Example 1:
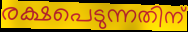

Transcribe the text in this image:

രക്ഷപെടുന്നതിന്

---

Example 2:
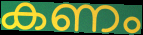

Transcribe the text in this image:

കണം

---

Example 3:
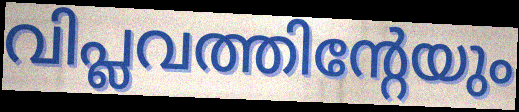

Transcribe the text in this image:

വിപ്ലവത്തിന്റേയും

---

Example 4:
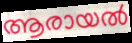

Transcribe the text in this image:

ആരായൽ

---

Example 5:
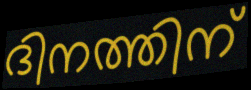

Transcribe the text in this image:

ദിനത്തിന്